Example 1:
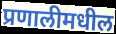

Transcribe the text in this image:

प्रणालीमधील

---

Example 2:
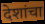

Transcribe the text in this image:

देशांचा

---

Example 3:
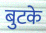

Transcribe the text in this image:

बुटके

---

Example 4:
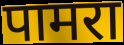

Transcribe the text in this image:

पामरा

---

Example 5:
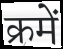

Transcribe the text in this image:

क्रमें